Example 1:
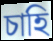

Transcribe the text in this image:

চাহি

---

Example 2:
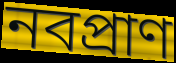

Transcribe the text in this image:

নবপ্রাণ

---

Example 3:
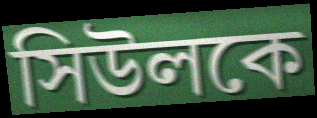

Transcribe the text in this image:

সিউলকে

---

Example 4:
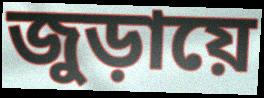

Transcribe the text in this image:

জুড়ায়ে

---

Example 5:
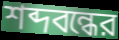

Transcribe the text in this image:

শব্দবন্ধের